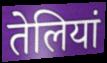
तेलियां